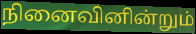
நினைவினின்றும்